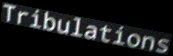
Tribulations